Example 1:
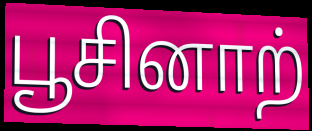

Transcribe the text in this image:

பூசினாற்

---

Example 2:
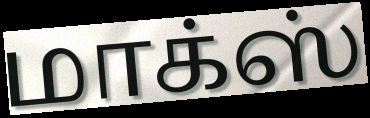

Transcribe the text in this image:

மாக்ஸ்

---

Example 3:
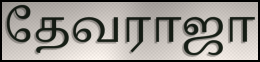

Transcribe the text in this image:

தேவராஜா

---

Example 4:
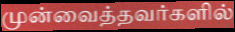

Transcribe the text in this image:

முன்வைத்தவர்களில்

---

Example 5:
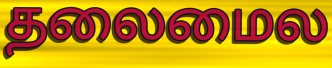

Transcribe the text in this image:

தலைமைல